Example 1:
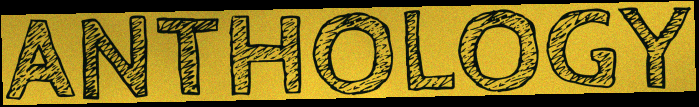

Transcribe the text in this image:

ANTHOLOGY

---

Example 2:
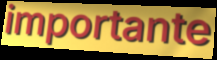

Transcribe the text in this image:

importante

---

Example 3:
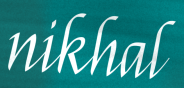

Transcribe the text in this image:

nikhal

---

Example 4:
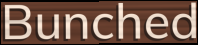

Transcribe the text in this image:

Bunched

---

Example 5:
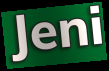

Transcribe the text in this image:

Jeni